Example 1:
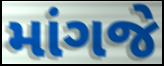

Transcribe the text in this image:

માંગજે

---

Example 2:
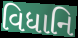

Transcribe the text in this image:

વિધાનિ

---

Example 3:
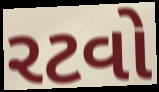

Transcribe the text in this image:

રટવો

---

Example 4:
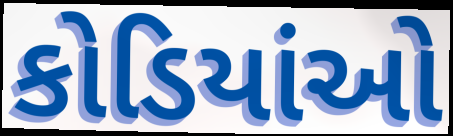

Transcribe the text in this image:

કોડિયાંઓ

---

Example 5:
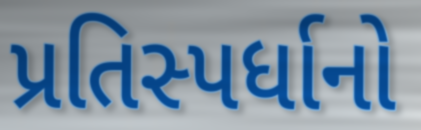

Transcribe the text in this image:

પ્રતિસ્પર્ધાનો